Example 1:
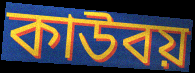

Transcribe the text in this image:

কাউবয়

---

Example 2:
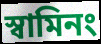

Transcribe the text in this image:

স্বামিনং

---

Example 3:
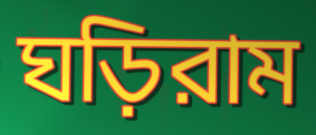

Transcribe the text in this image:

ঘড়িরাম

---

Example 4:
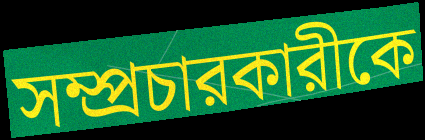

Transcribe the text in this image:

সম্প্রচারকারীকে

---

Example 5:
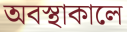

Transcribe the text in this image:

অবস্থাকালে